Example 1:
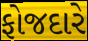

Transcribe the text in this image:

ફોજદારે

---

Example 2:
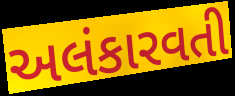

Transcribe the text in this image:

અલંકારવતી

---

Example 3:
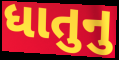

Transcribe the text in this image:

ધાતુનુ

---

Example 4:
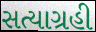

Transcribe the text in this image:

સત્યાગ્રહી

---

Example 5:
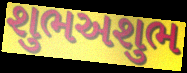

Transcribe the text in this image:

શુભઅશુભ